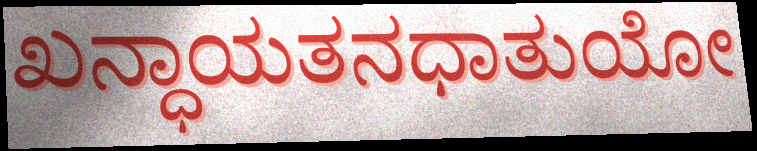
ಖನ್ಧಾಯತನಧಾತುಯೋ